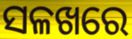
ସଳଖରେ